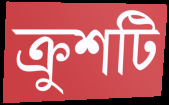
ক্রুশটি